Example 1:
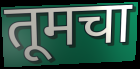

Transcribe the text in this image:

तूमचा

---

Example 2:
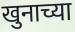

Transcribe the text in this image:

खुनाच्या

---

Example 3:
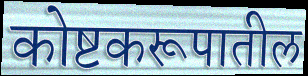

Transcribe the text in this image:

कोष्टकरूपातील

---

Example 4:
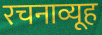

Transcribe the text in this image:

रचनाव्यूह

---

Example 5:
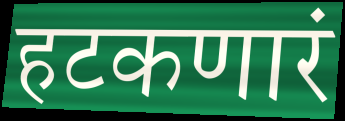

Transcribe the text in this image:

हटकणारं